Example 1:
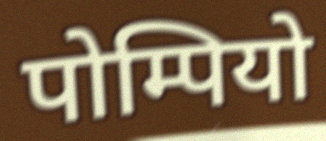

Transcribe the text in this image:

पोम्पियो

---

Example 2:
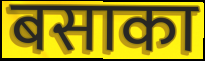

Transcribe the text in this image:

बसाका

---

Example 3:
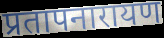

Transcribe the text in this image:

प्रतापनारायण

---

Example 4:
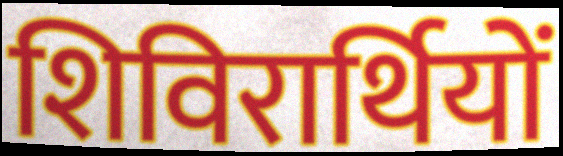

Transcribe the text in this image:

शिविरार्थियों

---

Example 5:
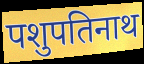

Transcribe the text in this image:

पशुपतिनाथ